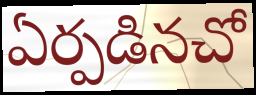
ఏర్పడినచో